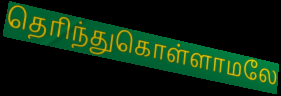
தெரிந்துகொள்ளாமலே